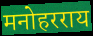
मनोहरराय